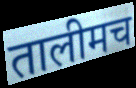
तालीमच